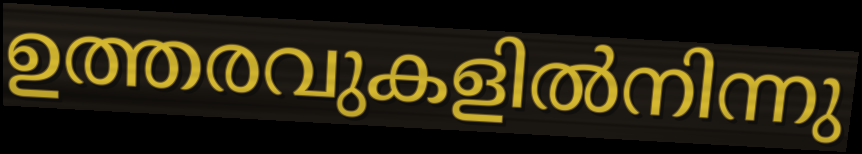
ഉത്തരവുകളിൽനിന്നു